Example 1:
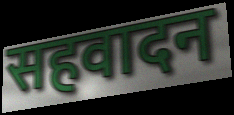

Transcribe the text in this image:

सहवादन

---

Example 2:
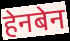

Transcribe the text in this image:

हेनबेन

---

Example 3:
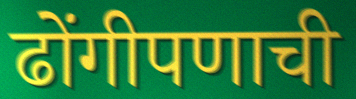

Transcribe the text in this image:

ढोंगीपणाची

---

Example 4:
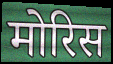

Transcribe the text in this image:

मोरिस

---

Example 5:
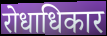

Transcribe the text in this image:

रोधाधिकार